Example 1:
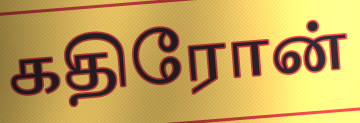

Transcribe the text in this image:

கதிரோன்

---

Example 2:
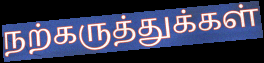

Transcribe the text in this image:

நற்கருத்துக்கள்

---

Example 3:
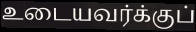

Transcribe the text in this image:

உடையவர்க்குப்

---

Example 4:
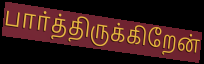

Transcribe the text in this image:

பார்த்திருக்கிறேன்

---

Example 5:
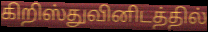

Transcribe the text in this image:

கிறிஸ்துவினிடத்தில்